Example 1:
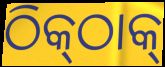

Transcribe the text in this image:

ଠିକ୍‌ଠାକ୍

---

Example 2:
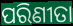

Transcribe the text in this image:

ପରିଣୀତା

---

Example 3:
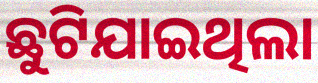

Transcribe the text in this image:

ଛୁଟିଯାଇଥିଲା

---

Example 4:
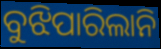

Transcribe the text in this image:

ବୁଝିପାରିଲାନି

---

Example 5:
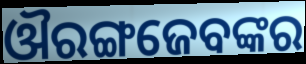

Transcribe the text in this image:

ଔରଙ୍ଗଜେବଙ୍କର